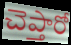
చెప్తారో